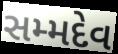
સમ્મદેવ